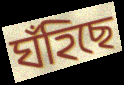
ঘঁহিছে